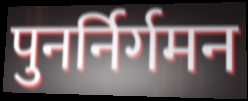
पुनर्निर्गमन